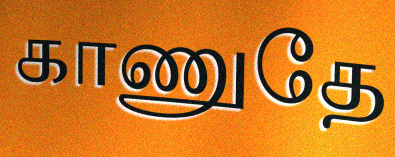
காணுதே